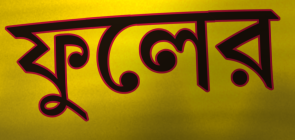
ফুলের